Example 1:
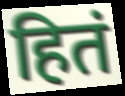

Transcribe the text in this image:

हितं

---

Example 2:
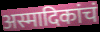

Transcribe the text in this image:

अस्मादिकांचं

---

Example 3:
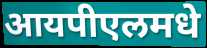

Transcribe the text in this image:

आयपीएलमधे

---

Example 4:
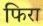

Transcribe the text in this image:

फिरा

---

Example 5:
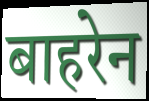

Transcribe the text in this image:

बाहरेन